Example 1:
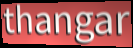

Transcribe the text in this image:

thangar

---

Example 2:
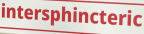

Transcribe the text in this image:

intersphincteric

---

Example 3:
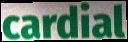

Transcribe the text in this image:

cardial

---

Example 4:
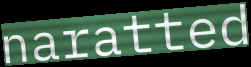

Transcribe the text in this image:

naratted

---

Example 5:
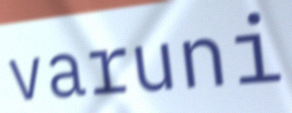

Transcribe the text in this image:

varuni